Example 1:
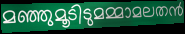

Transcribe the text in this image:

മഞ്ഞുമൂടിടുമമ്മാമലതൻ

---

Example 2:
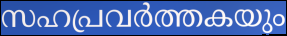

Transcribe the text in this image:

സഹപ്രവർത്തകയും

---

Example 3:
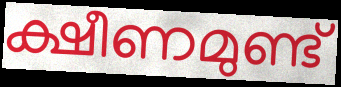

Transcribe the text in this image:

ക്ഷീണമുണ്ട്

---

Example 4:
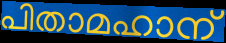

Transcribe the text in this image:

പിതാമഹാന്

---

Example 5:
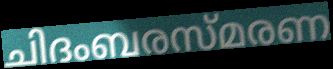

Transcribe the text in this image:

ചിദംബരസ്മരണ